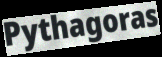
Pythagoras